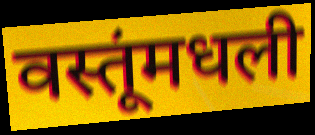
वस्तूंमधली